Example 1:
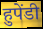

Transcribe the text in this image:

हुपेंडी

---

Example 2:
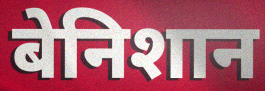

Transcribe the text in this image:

बेनिशान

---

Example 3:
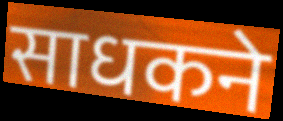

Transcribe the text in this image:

साधकने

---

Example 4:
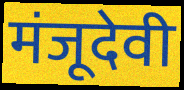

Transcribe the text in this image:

मंजूदेवी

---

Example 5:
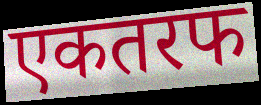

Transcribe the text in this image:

एकतरफ